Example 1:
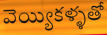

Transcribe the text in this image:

వెయ్యికళ్ళతో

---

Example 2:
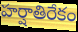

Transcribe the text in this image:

హర్షాతిరేకం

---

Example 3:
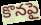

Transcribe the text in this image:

కొనపై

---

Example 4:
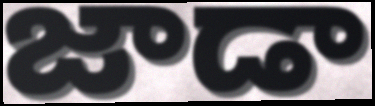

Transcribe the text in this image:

జాడా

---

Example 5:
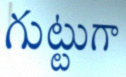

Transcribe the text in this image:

గుట్టుగా